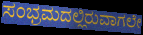
ಸಂಭ್ರಮದಲ್ಲಿರುವಾಗಲೇ